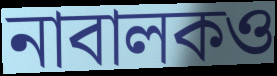
নাবালকও